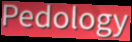
Pedology